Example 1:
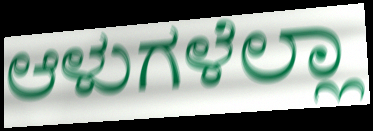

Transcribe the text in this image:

ಆಳುಗಳೆಲ್ಲಾ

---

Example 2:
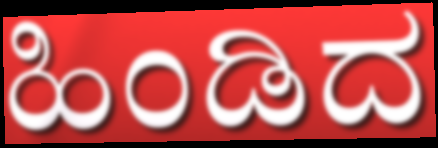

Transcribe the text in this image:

ಹಿಂಡಿದ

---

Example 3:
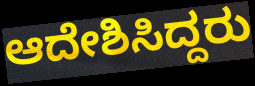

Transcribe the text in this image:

ಆದೇಶಿಸಿದ್ದರು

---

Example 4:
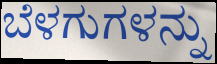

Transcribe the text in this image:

ಬೆಳಗುಗಳನ್ನು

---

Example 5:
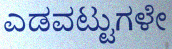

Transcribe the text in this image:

ಎಡವಟ್ಟುಗಳೇ